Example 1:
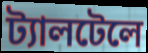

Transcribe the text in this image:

ট্যালটেলে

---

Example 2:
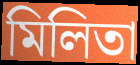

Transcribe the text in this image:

মিলিতা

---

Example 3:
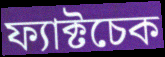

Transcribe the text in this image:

ফ্যাক্টচেক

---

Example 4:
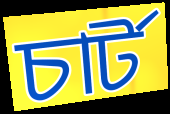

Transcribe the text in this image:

চার্ট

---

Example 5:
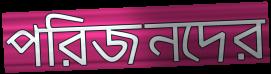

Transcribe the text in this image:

পরিজনদের